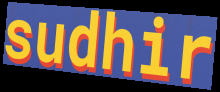
sudhir